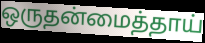
ஒருதன்மைத்தாய்